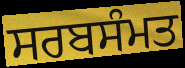
ਸਰਬਸੰਮਤ